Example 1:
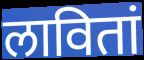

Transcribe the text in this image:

लावितां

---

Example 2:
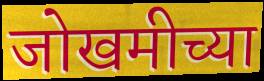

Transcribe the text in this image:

जोखमीच्या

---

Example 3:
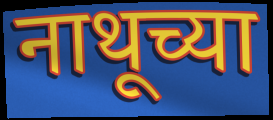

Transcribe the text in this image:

नाथूच्या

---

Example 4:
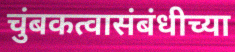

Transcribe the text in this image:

चुंबकत्वासंबंधीच्या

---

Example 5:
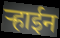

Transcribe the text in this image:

ऱ्हाईन